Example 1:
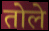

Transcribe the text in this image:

तोले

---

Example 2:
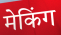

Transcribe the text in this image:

मेकिंग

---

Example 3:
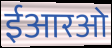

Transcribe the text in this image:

ईआरओ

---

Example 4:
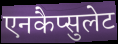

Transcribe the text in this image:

एनकैप्सुलेट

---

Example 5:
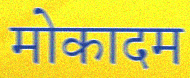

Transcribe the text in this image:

मोकादम